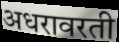
अधरावरती